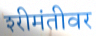
श्रीमंतीवर